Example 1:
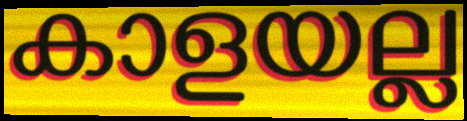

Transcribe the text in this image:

കാളയല്ല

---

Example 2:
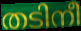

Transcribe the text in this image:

തടിനീ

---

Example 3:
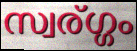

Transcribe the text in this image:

സ്വര്ഗ്ഗം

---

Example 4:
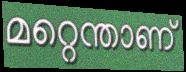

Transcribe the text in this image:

മറ്റെന്താണ്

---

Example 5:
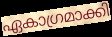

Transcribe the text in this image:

ഏകാഗ്രമാക്കി